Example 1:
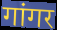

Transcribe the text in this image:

गांगर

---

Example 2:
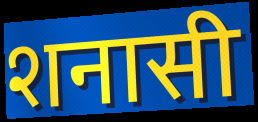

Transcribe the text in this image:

शनासी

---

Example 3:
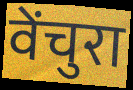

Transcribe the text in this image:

वेंचुरा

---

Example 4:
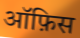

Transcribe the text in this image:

ऑफ़िस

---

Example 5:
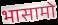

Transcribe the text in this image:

भासामो